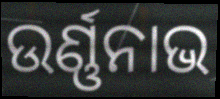
ଉର୍ଣ୍ଣନାଭ